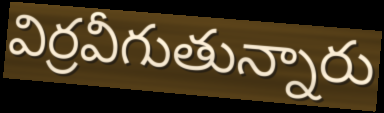
విర్రవీగుతున్నారు